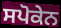
ਸਪੋਕੇਨ